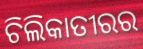
ଚିଲିକାତୀରର